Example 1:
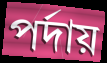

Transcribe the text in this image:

পর্দায়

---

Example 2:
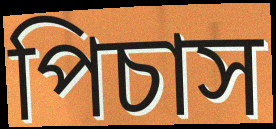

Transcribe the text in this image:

পিচাস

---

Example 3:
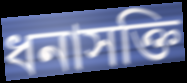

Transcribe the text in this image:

ধনাসক্তি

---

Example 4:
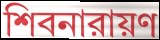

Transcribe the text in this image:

শিবনারায়ণ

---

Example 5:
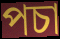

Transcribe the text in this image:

পচা